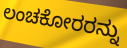
ಲಂಚಕೋರರನ್ನು